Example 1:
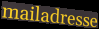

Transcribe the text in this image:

mailadresse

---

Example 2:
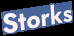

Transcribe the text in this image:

Storks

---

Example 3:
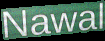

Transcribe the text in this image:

Nawal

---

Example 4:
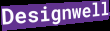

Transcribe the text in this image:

Designwell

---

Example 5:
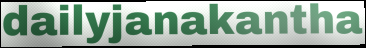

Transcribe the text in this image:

dailyjanakantha